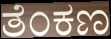
ತೆಂಕಣ